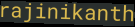
rajinikanth